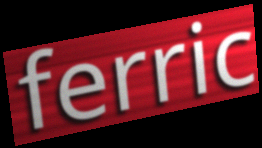
ferric